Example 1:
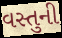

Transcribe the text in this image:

વસ્તુની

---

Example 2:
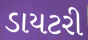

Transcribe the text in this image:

ડાયટરી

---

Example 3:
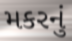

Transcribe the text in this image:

મકરનું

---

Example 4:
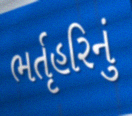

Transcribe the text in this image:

ભર્તૃહરિનું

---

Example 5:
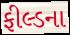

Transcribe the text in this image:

ફીલ્ડના